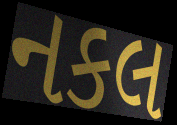
નકલ